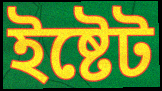
ইষ্টেট